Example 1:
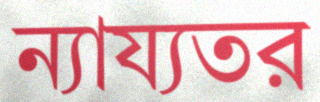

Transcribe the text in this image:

ন্যায্যতর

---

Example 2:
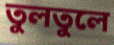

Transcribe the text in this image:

তুলতুলে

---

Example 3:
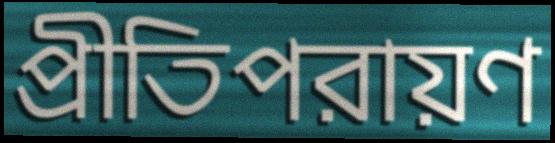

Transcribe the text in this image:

প্রীতিপরায়ণ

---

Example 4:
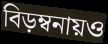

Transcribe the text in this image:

বিড়ম্বনায়ও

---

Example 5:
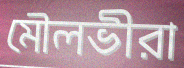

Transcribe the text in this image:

মৌলভীরা